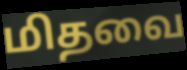
மிதவை